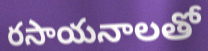
రసాయనాలతో